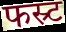
फस्र्ट